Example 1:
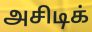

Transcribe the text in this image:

அசிடிக்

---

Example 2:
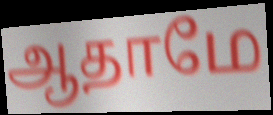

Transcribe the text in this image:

ஆதாமே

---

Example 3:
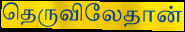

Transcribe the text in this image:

தெருவிலேதான்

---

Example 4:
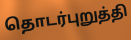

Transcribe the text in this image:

தொடர்புறுத்தி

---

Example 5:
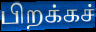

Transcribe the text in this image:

பிறக்கச்